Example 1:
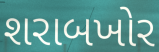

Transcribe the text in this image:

શરાબખોર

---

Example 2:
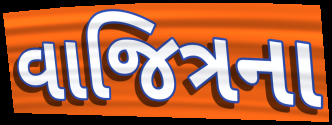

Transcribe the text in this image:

વાજિત્રના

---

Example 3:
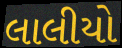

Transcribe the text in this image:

લાલીયો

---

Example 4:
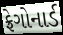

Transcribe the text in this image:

ફ્રેગોનાર્ડ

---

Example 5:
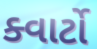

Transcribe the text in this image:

ક્વાર્ટો